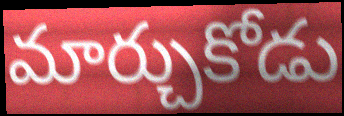
మార్చుకోడు